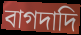
বাগদাদি